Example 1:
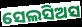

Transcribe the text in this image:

ସେଲସିଅସ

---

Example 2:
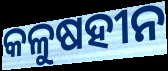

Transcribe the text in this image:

କଳୁଷହୀନ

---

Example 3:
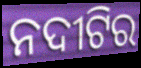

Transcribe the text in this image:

ନଦୀଟିର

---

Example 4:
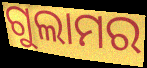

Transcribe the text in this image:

ଗୁଲାମର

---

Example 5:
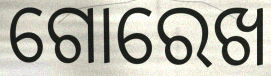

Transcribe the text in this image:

ଗୋରେଖ